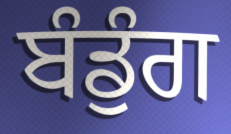
ਬੰਡੁੰਗ